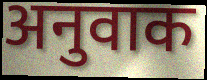
अनुवाक